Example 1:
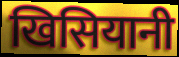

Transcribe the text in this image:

खिसियानी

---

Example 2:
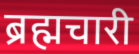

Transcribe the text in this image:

ब्रह्मचारी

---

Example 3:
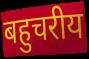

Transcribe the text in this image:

बहुचरीय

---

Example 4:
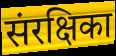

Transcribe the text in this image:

संरक्षिका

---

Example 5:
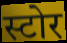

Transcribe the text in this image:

स्‍टोर